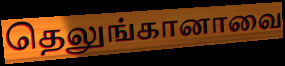
தெலுங்கானாவை